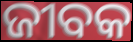
ଜୀବକ